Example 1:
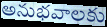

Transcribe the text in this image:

అనుభవాలకు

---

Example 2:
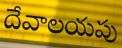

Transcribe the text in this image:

దేవాలయపు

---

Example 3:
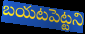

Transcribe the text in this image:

బయటపెట్టని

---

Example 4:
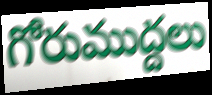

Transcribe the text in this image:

గోరుముద్దలు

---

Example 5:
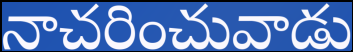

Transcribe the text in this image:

నాచరించువాడు